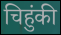
चिहुंकी